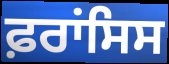
ਫ਼ਰਾਂਸਿਸ